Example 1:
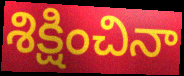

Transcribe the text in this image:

శిక్షించినా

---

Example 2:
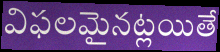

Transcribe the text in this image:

విఫలమైనట్లయితే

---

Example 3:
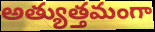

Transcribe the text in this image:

అత్యుత్తమంగా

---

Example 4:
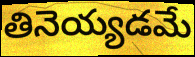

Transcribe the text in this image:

తినెయ్యడమే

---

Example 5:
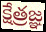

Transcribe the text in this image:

క్షేత్రజ్ఞ